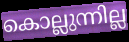
കൊല്ലുന്നില്ല